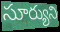
సూర్యుని